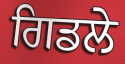
ਗਿਡਲੇ